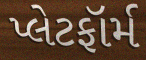
પ્લેટફૉર્મ